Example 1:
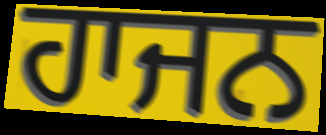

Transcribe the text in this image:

ਹਾਜਨ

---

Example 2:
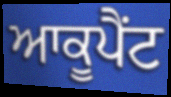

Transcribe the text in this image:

ਆਕੂਪੈਂਟ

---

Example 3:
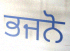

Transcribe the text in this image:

ਭਜਨੋ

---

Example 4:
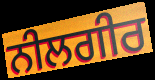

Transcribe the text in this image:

ਨੀਲਗੀਰ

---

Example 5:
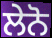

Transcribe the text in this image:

ਲੇਨੋ